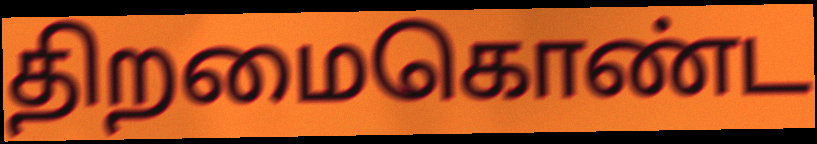
திறமைகொண்ட